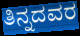
ತಿನ್ನದವರ